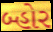
બ્હોર